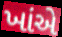
ખાંએ